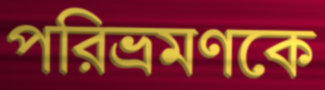
পরিভ্রমণকে